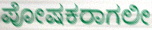
ಪೋಷಕರಾಗಲೀ